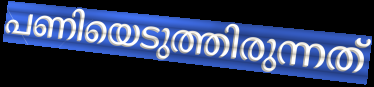
പണിയെടുത്തിരുന്നത്